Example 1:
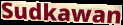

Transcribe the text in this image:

Sudkawan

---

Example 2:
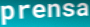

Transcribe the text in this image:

prensa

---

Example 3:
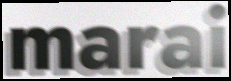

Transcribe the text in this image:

marai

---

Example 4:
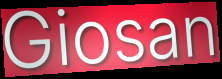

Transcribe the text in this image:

Giosan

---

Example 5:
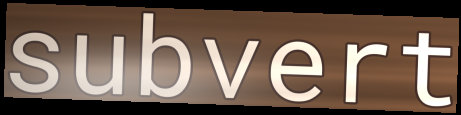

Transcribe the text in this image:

subvert